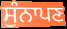
ਸੁੰਨਾਪਣ